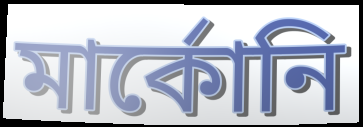
মার্কোনি